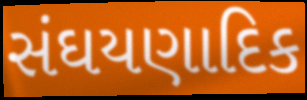
સંઘયણાદિક